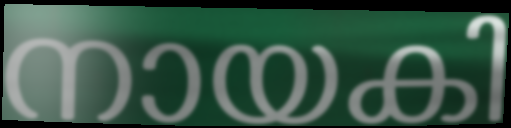
നായകി